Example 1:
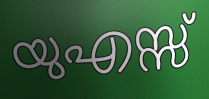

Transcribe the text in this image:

യുഎസ്സ്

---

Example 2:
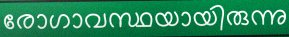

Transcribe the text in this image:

രോഗാവസ്ഥയായിരുന്നു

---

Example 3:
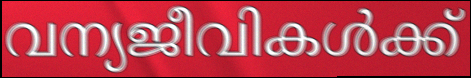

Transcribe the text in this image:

വന്യജീവികൾക്ക്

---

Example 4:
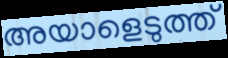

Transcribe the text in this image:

അയാളെടുത്ത്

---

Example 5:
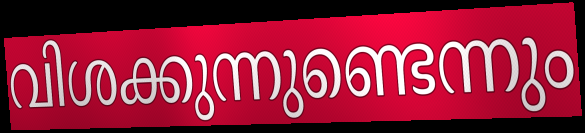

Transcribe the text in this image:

വിശക്കുന്നുണ്ടെന്നും